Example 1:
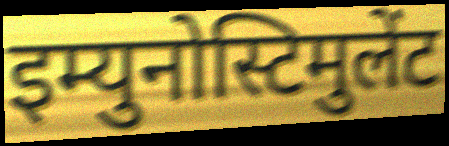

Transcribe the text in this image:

इम्युनोस्टिमुलेंट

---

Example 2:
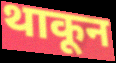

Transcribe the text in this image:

थाकून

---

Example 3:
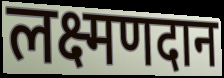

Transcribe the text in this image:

लक्ष्मणदान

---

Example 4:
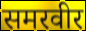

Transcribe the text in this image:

समरवीर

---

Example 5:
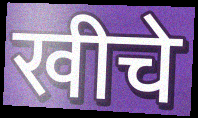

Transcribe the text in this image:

खीचे